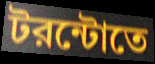
টরন্টোতে